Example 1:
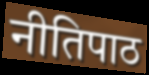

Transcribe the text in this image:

नीतिपाठ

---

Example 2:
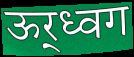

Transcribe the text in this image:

ऊर्ध्वग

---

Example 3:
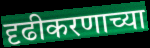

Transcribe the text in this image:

दृढीकरणाच्या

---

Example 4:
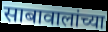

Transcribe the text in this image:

साबावालांच्या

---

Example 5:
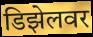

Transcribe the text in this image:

डिझेलवर